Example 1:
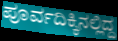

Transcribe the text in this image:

ಪೂರ್ವದಿಕ್ಕಿನಲ್ಲಿದ್ದ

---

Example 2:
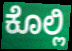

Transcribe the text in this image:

ಕೊಲ್ಲಿ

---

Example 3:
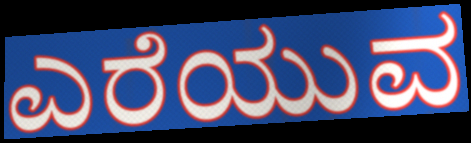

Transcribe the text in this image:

ಎರೆಯುವ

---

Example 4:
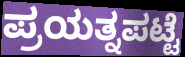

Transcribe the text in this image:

ಪ್ರಯತ್ನಪಟ್ಟೆ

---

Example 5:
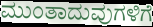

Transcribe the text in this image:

ಮುಂತಾದುವುಗಳಿಗೆ